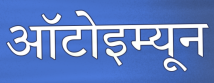
ऑटोइम्‍यून